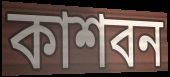
কাশবন